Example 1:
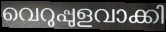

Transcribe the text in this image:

വെറുപ്പുളവാക്കി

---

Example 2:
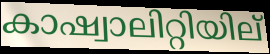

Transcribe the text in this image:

കാഷ്വാലിറ്റിയില്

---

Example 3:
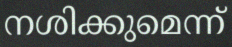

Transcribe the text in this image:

നശിക്കുമെന്ന്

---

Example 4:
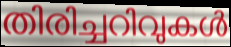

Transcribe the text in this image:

തിരിച്ചറിവുകൾ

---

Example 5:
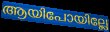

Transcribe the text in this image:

ആയിപോയില്ലേ